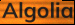
Algolia